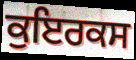
ਕੁਇਰਕਸ